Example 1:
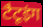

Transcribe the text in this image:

टैटूइंग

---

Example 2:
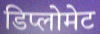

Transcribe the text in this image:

डिप्लोमेट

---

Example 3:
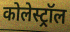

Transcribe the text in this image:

कोलेस्ट्रॉल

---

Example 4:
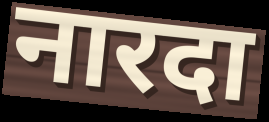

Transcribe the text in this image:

नारदा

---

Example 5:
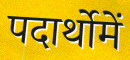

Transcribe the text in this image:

पदार्थोमें